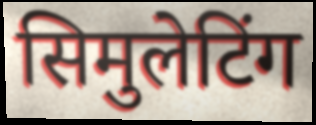
सिमुलेटिंग